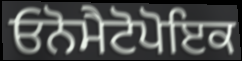
ਓਨੋਮੈਟੋਪੋਇਕ